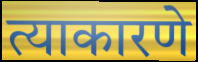
त्याकारणे